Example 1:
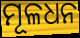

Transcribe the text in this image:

ମୂଳଧନ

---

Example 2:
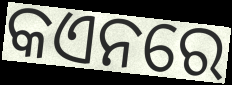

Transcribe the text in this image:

କଏନରେ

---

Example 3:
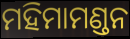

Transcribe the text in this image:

ମହିମାମଣ୍ଡନ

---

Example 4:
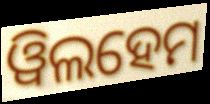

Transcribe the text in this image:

ୱିଲହେମ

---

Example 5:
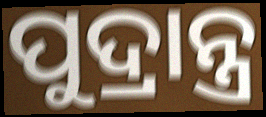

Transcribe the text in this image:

ପୁଦ୍ରାନ୍ତ୍ର